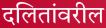
दलितांवरील